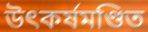
উৎকর্ষমণ্ডিত